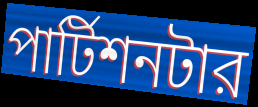
পার্টিশনটার